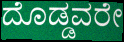
ದೊಡ್ಡವರೇ